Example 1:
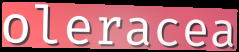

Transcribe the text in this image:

oleracea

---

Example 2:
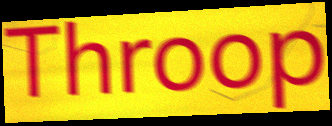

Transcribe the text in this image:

Throop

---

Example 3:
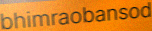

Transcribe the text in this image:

bhimraobansod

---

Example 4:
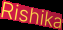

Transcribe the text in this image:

Rishika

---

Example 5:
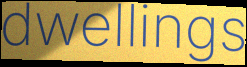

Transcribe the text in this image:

dwellings